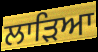
ਲਾੜਿਆ